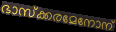
ഭാസ്ക്കരമേനോന്